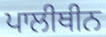
ਪਾਲੀਥੀਨ